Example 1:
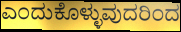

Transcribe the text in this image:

ಎಂದುಕೊಳ್ಳುವುದರಿಂದ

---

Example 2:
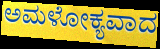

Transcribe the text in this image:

ಅಮಳೋಕ್ಯವಾದ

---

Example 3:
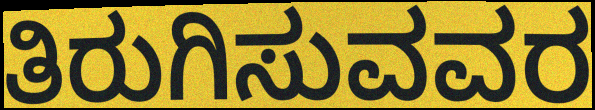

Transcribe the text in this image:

ತಿರುಗಿಸುವವರ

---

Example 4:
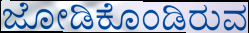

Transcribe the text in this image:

ಜೋಡಿಕೊಂಡಿರುವ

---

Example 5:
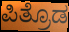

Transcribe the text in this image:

ಪಿತ್ರೊಡ